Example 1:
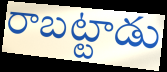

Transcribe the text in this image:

రాబట్టాడు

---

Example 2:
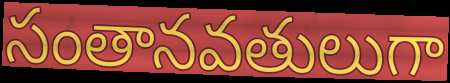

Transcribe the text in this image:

సంతానవతులుగా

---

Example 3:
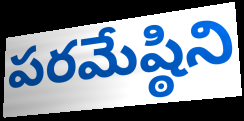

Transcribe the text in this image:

పరమేష్ఠిని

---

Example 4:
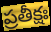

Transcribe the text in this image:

ప్రతీక్షః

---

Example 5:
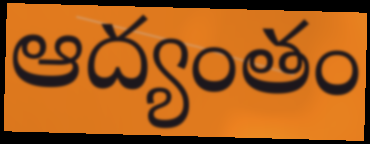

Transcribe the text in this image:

ఆద్యంతం